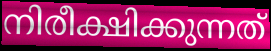
നിരീക്ഷിക്കുന്നത്